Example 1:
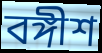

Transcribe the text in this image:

বঙ্গীশ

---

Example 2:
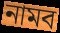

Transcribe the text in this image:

নামব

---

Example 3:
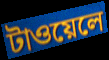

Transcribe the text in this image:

টাওয়েলে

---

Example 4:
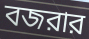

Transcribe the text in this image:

বজরার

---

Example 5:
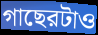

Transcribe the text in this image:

গাছেরটাও